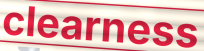
clearness